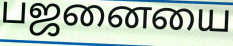
பஜனையை